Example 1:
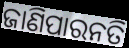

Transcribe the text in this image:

ଜାଣିପାରନତି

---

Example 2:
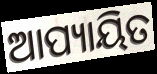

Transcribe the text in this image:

ଆପ୍ଯାୟିତ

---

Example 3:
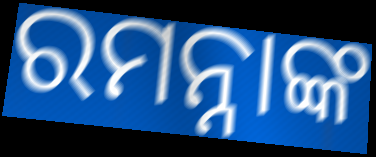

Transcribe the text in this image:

ରମନ୍ନାଙ୍କ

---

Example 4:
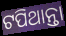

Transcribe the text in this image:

ଟପିଥାନ୍ତା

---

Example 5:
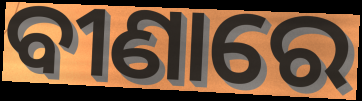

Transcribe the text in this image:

ବୀଣାରେ